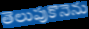
తెలుపుకొనెను